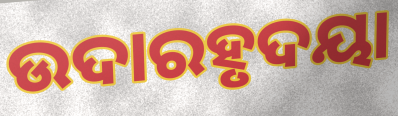
ଉଦାରହୃଦୟା